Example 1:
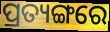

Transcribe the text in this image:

ପ୍ରତ୍ୟଙ୍ଗରେ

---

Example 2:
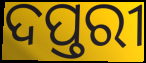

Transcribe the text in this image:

ଦପ୍ତରୀ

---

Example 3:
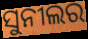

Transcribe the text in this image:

ସୁନୀଲର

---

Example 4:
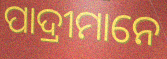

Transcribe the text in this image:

ପାଦ୍ରୀମାନେ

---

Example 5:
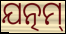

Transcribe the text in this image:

ଯତ୍ନମ୍